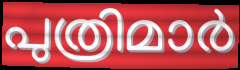
പുത്രിമാർ